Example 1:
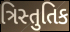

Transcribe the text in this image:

ત્રિસ્તુતિક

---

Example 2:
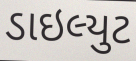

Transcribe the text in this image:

ડાઇલ્યુટ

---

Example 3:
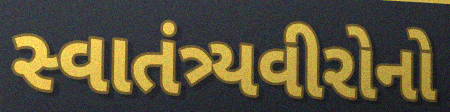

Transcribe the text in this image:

સ્વાતંત્ર્યવીરોનો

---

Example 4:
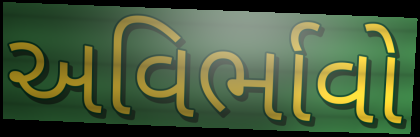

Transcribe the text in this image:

અવિર્ભાવો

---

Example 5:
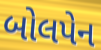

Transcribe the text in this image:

બોલપેન